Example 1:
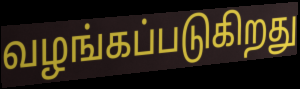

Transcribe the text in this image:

வழங்கப்படுகிறது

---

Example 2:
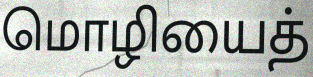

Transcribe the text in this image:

மொழியைத்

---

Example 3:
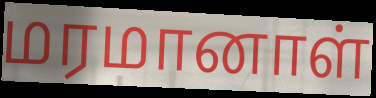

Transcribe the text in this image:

மரமானாள்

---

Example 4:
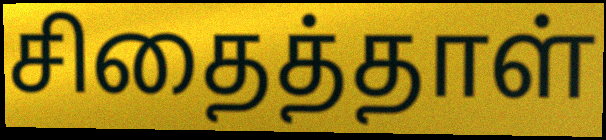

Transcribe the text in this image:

சிதைத்தாள்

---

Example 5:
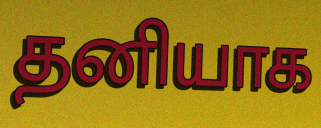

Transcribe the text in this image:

தனியாக